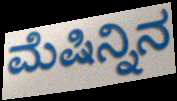
ಮೆಷಿನ್ನಿನ